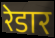
रेडार